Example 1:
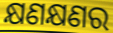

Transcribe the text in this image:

କ୍ଷଣକ୍ଷଣର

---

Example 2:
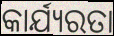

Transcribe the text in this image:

କାର୍ଯ୍ୟରତା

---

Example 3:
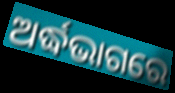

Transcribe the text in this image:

ଅର୍ଦ୍ଧଭାଗରେ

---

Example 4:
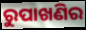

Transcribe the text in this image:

ରୁପାଖଣିର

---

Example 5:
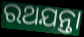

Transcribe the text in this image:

ରଥଯନ୍ତା